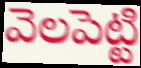
వెలపెట్టి